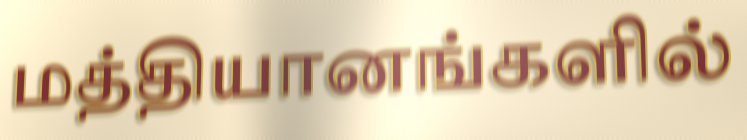
மத்தியானங்களில்